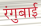
रंगुबाई